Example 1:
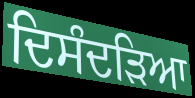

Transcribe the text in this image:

ਦਿਸੰਦੜਿਆ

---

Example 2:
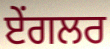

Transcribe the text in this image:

ਏਂਗਲਰ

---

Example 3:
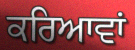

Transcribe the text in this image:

ਕਰਿਆਵਾਂ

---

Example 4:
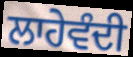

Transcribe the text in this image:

ਲਾਹੇਵੰਦੀ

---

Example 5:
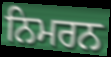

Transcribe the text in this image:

ਨਿਮਰਨ